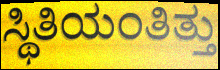
ಸ್ಥಿತಿಯಂತಿತ್ತು